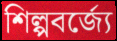
শিল্পবর্জ্যে